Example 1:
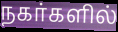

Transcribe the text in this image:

நகர்களில்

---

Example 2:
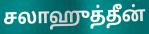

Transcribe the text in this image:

சலாஹுத்தீன்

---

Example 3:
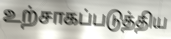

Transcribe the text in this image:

உற்சாகப்படுத்திய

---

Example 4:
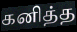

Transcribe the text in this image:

கனித்த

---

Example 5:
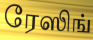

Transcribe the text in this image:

ரேஸிங்